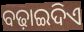
ବଢ଼ାଇଦିଏ